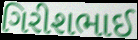
ગિરીશભાઈ